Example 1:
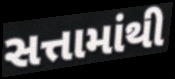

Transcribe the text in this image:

સત્તામાંથી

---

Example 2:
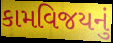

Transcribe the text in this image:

કામવિજયનું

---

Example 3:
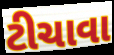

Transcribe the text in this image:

ટીચાવા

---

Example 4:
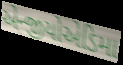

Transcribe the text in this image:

એન્જીયોએડિમા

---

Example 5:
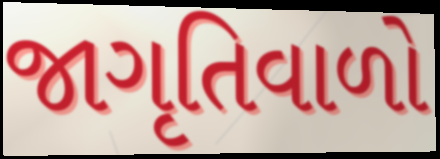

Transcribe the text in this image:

જાગૃતિવાળો